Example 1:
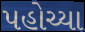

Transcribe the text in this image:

પહોચ્યા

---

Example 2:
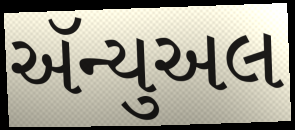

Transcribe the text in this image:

ઍન્યુઅલ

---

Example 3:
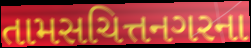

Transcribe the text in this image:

તામસચિત્તનગરના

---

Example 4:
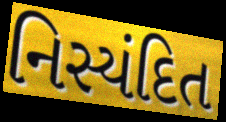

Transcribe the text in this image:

નિસ્યંદિત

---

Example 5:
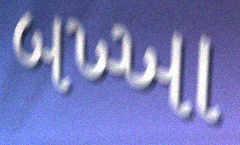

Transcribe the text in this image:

બખ્ખા